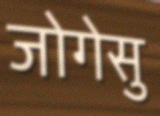
जोगेसु